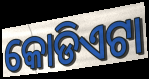
କୋଡିଏଟା